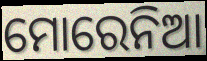
ମୋରେନିଆ